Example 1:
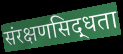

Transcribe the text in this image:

संरक्षणसिद्धता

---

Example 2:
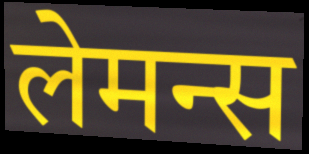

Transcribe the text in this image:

लेमन्स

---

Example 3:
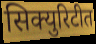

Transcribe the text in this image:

सिक्युरिटीत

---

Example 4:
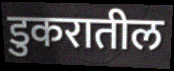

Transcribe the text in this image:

डुकरातील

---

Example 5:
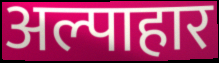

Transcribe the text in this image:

अल्पाहार